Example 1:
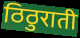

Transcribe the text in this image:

ठिठुराती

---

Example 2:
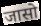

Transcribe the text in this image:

जासो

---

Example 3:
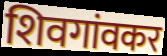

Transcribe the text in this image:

शिवगांवकर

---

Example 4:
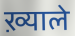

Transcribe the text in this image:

ख़्याले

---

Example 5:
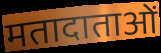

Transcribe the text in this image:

मतादाताओं